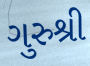
ગુરુશ્રી